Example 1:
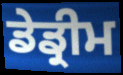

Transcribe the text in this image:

ਡੇਡ੍ਰੀਮ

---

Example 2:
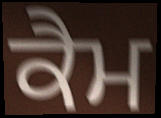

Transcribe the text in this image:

ਕੈਮ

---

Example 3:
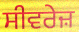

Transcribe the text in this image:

ਸੀਵਰੇਜ਼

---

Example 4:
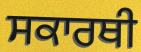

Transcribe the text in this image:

ਸਕਾਰਥੀ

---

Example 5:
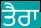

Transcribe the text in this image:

ਤੈਰਾ